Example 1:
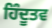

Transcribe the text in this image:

ਹਿੰਦੂਤਵ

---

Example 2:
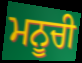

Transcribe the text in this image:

ਮਨੂਚੀ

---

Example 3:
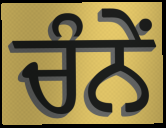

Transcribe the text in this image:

ਚੰਨੇਂ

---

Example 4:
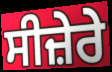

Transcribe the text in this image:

ਸੀਜ਼ੇਰੇ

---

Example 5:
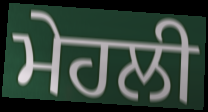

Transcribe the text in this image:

ਮੇਹਲੀ